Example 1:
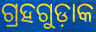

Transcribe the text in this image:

ଗ୍ରହଗୁଡ଼ାକ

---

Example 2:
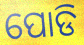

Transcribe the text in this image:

ପୋଡି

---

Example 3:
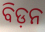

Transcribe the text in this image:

ବିଡ଼ନ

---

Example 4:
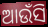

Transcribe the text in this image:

ଆଉଁସି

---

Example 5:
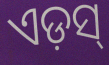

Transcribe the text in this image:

ଏଡ଼ସ୍